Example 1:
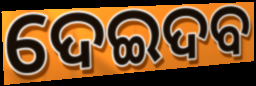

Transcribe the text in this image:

ଦେଇଦବ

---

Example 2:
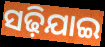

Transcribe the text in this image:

ସଢ଼ିଯାଇ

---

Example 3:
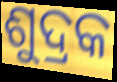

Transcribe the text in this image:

ଶୁଦ୍ରକ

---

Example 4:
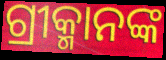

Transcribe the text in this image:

ଗ୍ରୀକ୍ମାନଙ୍କ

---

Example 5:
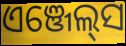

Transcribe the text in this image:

ଏଞ୍ଜେଲ୍‍ସ